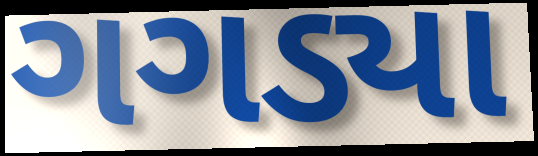
ગગડ્યા